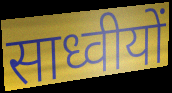
साध्वीयों